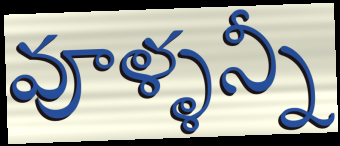
వూళ్ళన్నీ